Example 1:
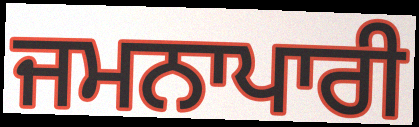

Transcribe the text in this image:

ਜਮਨਾਪਾਰੀ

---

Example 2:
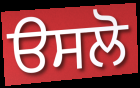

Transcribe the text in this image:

ੳਸਲੋ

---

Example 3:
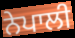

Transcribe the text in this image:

ਨੇਪਾਲੀ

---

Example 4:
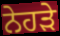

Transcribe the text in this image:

ਨੇਹੜੇ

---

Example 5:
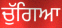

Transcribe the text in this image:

ਚੁੱਗਿਆ